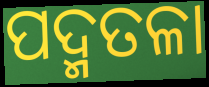
ପଦ୍ମତଳା